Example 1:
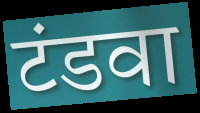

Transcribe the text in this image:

टंडवा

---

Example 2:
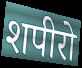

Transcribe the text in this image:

शपीरो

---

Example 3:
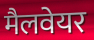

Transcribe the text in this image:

मैलवेयर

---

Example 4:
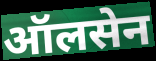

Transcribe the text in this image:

ऑलसेन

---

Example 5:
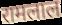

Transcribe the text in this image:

रामलाल